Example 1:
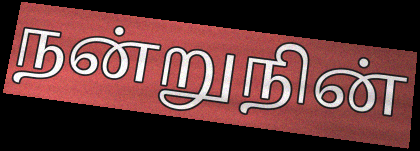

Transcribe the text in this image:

நன்றுநின்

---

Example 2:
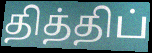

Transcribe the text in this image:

தித்திப்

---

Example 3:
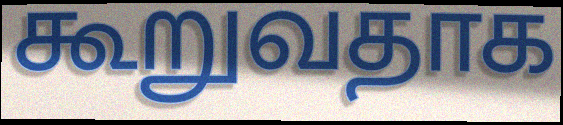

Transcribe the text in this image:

கூறுவதாக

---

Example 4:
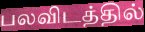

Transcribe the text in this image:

பலவிடத்தில்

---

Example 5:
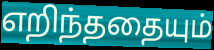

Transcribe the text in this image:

எறிந்ததையும்